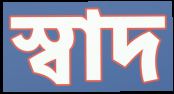
স্বাদ